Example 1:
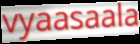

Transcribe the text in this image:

vyaasaala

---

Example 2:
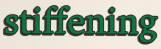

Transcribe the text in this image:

stiffening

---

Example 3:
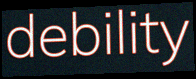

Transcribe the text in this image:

debility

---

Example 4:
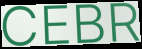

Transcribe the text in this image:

CEBR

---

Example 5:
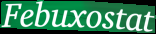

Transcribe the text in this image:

Febuxostat